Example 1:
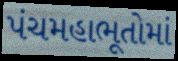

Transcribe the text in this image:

પંચમહાભૂતોમાં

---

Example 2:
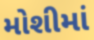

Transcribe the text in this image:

મોશીમાં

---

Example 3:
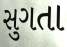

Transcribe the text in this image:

સુગતા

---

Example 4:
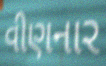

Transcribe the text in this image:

વીણનાર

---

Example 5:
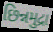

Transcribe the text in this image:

છિન્નમુદ્રા